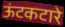
ऊंटकटारे